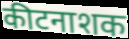
कीटनाशक